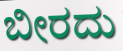
ಬೀರದು